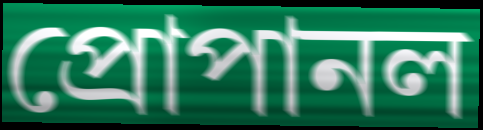
প্রোপানল